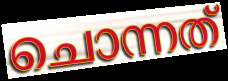
ചൊന്നത്